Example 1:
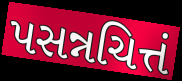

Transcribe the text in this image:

પસન્નચિત્તં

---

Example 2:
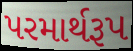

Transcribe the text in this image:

પરમાર્થરૂપ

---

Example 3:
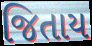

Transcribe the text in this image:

જિતાય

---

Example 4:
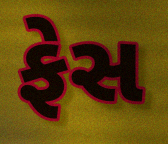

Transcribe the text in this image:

ફેસ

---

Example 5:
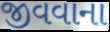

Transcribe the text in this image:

જીવવાના